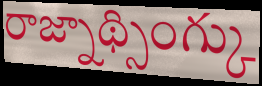
రాజ్నాథ్సింగ్కు